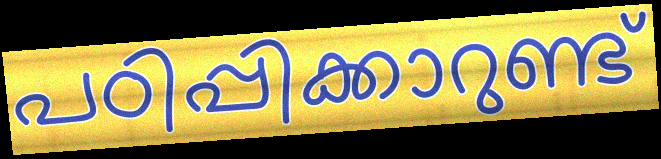
പഠിപ്പിക്കാറുണ്ട്